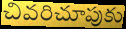
చివరిచూపుకు